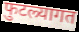
फुटल्यागत